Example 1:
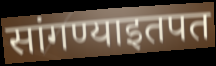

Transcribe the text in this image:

सांगण्याइतपत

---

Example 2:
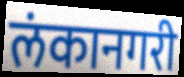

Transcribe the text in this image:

लंकानगरी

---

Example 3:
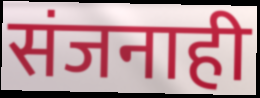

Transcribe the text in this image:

संजनाही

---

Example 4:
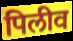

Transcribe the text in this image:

पिलीव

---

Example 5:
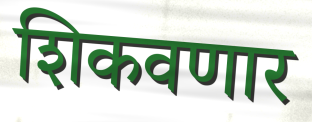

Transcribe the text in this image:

शिकवणार